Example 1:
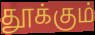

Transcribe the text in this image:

தூக்கும்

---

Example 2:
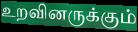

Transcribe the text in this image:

உறவினருக்கும்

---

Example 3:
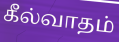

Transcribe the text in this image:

கீல்வாதம்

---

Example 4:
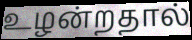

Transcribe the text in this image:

உழன்றதால்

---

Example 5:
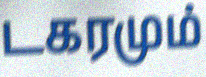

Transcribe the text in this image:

டகரமும்